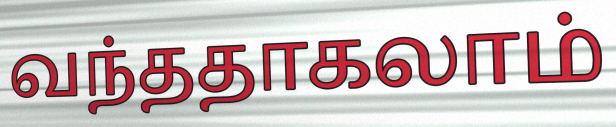
வந்ததாகலாம்